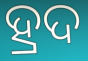
ହ୍ରଦ